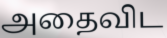
அதைவிட